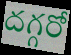
దగ్గరో